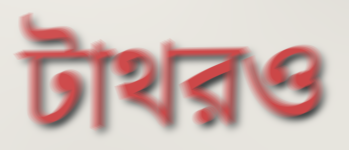
টাথরও